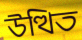
উত্থিত